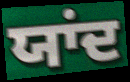
ਯਾਂਦ